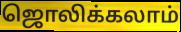
ஜொலிக்கலாம்